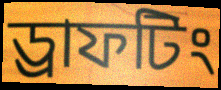
ড্রাফটিং